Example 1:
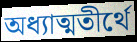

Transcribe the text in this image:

অধ্যাত্মতীর্থে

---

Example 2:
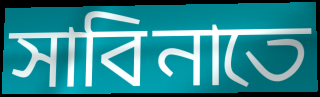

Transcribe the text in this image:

সাবিনাতে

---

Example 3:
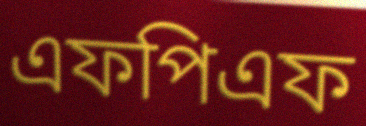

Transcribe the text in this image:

এফপিএফ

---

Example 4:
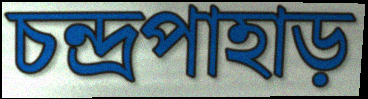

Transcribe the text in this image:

চন্দ্রপাহাড়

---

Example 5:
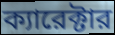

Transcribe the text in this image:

ক্যারেক্টার